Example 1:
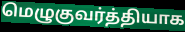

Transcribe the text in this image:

மெழுகுவர்த்தியாக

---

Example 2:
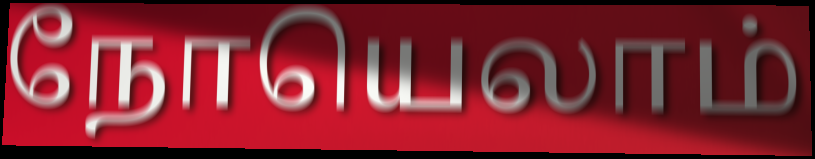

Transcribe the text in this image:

நோயெலாம்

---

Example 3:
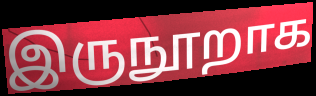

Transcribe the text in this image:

இருநூறாக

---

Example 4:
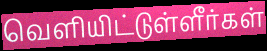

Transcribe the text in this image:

வெளியிட்டுள்ளீர்கள்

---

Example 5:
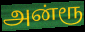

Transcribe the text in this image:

அன்ரூ